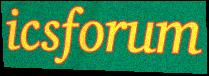
icsforum